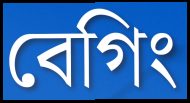
বেগিং